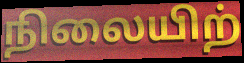
நிலையிற்